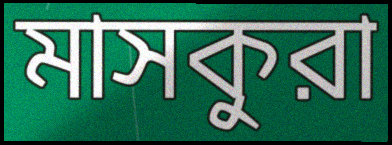
মাসকুরা